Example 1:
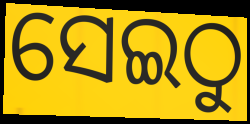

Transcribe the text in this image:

ସେଇଠୁ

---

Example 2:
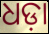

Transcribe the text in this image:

ଧଡ଼ା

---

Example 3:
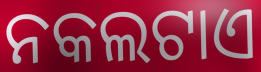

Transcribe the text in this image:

ନକଲଟାଏ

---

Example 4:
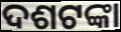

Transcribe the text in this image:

ଦଶଟଙ୍କା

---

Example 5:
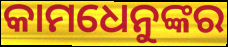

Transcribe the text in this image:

କାମଧେନୁଙ୍କର